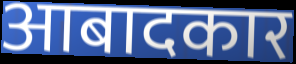
आबादकार